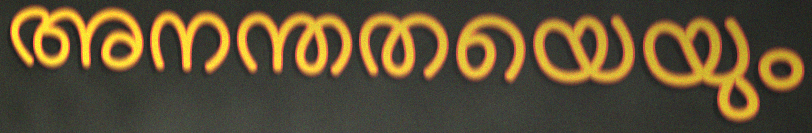
അനന്തതയെയും